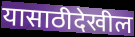
यासाठीदेखील